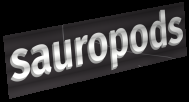
sauropods